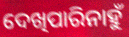
ଦେଖିପାରିନାହୁଁ